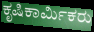
ಕೃಷಿಕಾರ್ಮಿಕರು